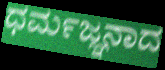
ಧರ್ಮಜ್ಞನಾದ